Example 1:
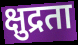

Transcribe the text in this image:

क्षुद्रता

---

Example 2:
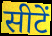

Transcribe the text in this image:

सीटें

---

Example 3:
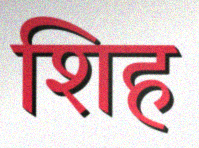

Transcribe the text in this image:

शिह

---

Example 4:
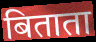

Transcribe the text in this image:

बिताता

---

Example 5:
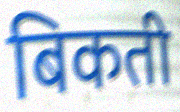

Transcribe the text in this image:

बिकती